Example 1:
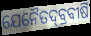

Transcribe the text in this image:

ଯେନୈତଦ୍‌ବ୍ରବୀର୍ଷି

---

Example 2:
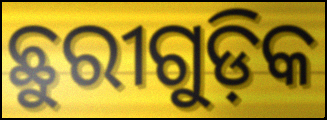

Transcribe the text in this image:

ଛୁରୀଗୁଡ଼ିକ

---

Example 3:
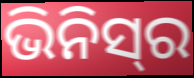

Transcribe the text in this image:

ଭିନିସ୍‌ର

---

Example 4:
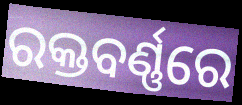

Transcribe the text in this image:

ରକ୍ତବର୍ଣ୍ଣରେ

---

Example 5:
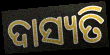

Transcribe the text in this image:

ଦାସ୍ୟତି